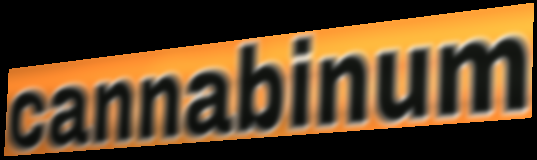
cannabinum